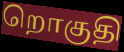
றொகுதி